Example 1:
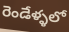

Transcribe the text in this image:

రెండేళ్ళలో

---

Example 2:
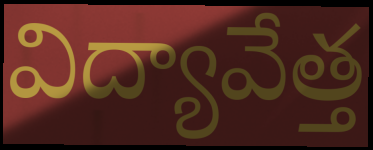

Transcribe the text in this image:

విద్యావేత్త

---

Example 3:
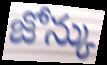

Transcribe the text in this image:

జోన్కు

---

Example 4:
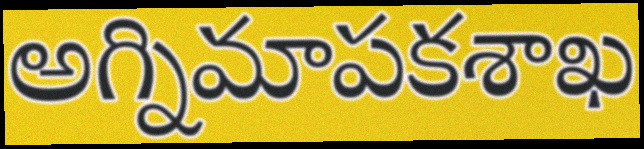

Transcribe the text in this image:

అగ్నిమాపకశాఖ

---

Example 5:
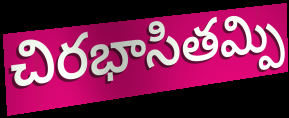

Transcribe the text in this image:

చిరభాసితమ్పి